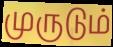
முருடும்